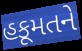
હકૂમતને